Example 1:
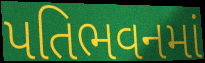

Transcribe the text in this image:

પતિભવનમાં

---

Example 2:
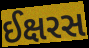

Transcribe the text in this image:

ઈક્ષરસ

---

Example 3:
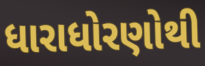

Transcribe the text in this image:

ધારાધોરણોથી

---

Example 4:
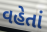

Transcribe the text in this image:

વહેતાં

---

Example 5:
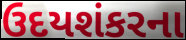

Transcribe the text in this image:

ઉદયશંકરના